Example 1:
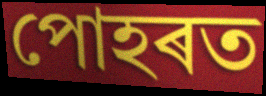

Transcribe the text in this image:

পোহৰত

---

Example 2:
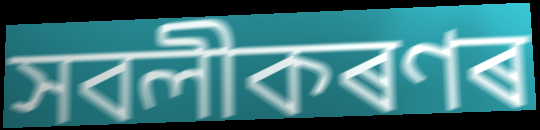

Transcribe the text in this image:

সবলীকৰণৰ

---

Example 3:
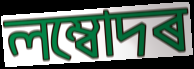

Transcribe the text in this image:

লম্বোদৰ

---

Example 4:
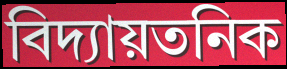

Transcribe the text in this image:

বিদ্যায়তনিক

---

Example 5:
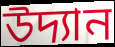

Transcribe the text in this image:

উদ্যান